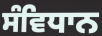
ਸੰਵਿਧਾਨ